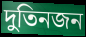
দুতিনজন